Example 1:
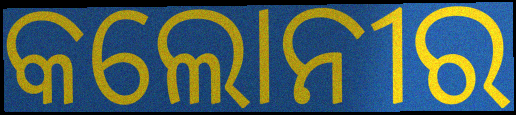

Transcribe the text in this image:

କଲୋନୀର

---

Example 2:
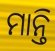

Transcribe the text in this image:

ମାନ୍ତି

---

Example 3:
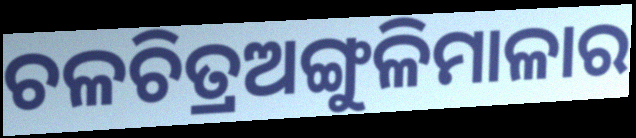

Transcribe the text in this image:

ଚଳଚିତ୍ରଅଙ୍ଗୁଳିମାଳାର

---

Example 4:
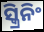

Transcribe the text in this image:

ସ୍କ୍ରିନିଂ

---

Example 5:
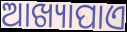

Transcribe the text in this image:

ଆଖ୍ୟାପାଏ